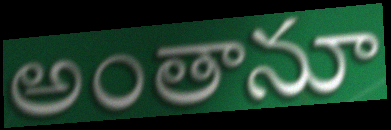
అంతానూ